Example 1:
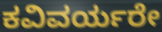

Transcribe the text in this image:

ಕವಿವರ್ಯರೇ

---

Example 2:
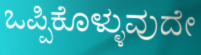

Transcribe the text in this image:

ಒಪ್ಪಿಕೊಳ್ಳುವುದೇ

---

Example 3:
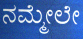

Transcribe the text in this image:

ನಮ್ಮೇಲೇ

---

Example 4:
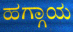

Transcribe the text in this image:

ಹಗ್ಗಾಯ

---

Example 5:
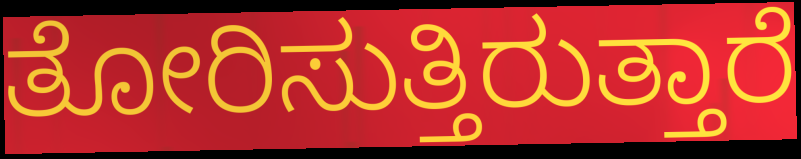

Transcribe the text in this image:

ತೋರಿಸುತ್ತಿರುತ್ತಾರೆ